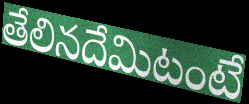
తేలినదేమిటంటే